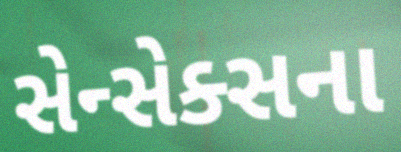
સેન્સેક્સના